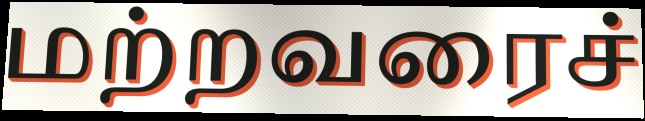
மற்றவரைச்